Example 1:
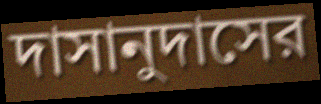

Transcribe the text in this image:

দাসানুদাসের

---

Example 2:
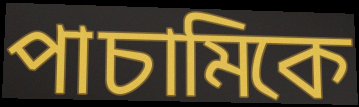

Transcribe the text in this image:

পাচামিকে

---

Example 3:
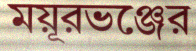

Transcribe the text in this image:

ময়ূরভঞ্জের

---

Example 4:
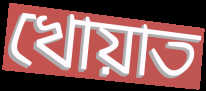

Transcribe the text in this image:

খোয়াত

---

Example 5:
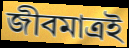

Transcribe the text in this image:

জীবমাত্রই